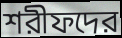
শরীফদের